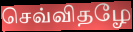
செவ்விதழே